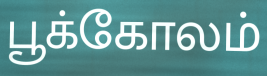
பூக்கோலம்